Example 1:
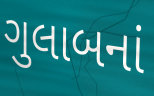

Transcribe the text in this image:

ગુલાબનાં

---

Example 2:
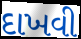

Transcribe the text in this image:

દાખવી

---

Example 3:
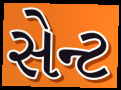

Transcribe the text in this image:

સેન્ટ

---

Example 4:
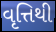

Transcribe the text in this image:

વૃત્તિથી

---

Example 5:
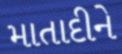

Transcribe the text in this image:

માતાદીને